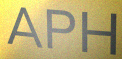
APH